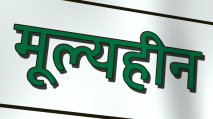
मूल्यहीन